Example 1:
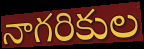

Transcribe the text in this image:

నాగరికుల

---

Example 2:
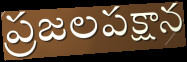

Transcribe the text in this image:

ప్రజలపక్షాన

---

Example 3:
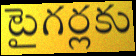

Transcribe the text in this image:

టైగర్లకు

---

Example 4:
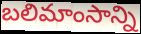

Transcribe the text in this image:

బలిమాంసాన్ని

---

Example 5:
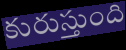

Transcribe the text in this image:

కురుస్తుంది